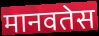
मानवतेस